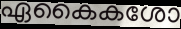
ഏകൈകശോ